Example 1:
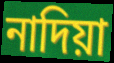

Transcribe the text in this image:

নাদিয়া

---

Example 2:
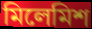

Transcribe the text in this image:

মিলেমিশ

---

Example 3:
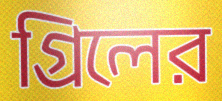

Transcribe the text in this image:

গ্রিলের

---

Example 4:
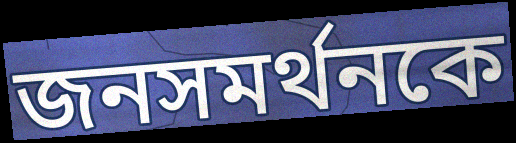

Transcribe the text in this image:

জনসমর্থনকে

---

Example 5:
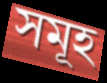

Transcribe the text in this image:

সমূহ